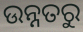
ଉନ୍ନତରୁ